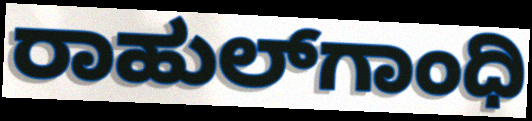
ರಾಹುಲ್‌ಗಾಂಧಿ